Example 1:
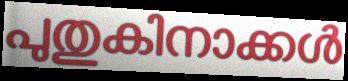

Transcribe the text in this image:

പുതുകിനാക്കൾ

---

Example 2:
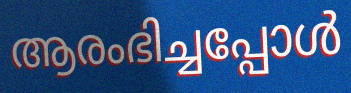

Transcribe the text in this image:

ആരംഭിച്ചപ്പോൾ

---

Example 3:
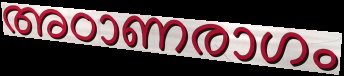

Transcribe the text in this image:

അഠാണരാഗം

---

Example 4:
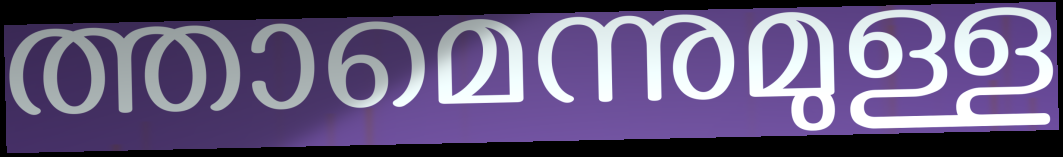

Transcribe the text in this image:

ത്താമെന്നുമുള്ള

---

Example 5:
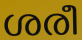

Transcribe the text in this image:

ശരീ